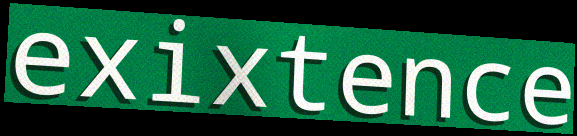
exixtence